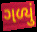
ગળ્યું